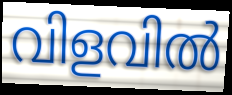
വിളവിൽ